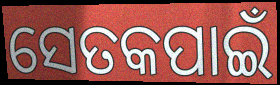
ସେତକପାଇଁ